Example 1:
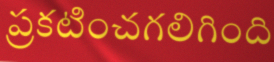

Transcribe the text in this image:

ప్రకటించగలిగింది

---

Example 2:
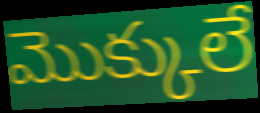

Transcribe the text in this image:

మొక్కులే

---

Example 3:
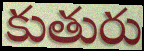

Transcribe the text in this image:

కుతురు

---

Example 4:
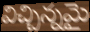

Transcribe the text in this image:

విచ్చిన్నమై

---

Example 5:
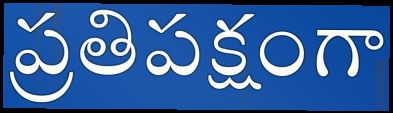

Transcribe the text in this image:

ప్రతిపక్షంగా